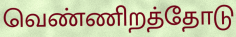
வெண்ணிறத்தோடு